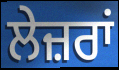
ਲੇਜ਼ਰਾਂ